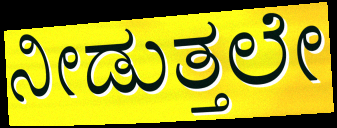
ನೀಡುತ್ತಲೇ